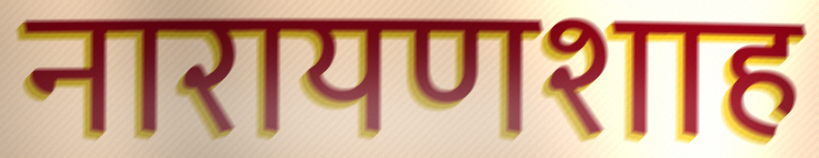
नारायणशाह